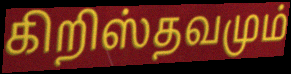
கிறிஸ்தவமும்